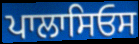
ਪਾਲਾਸਿਓਸ